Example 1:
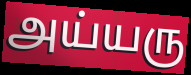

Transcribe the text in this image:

அய்யரு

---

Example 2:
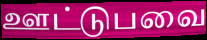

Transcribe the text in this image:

ஊட்டுபவை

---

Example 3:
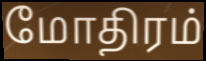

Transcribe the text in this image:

மோதிரம்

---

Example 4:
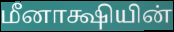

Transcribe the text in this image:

மீனாக்ஷியின்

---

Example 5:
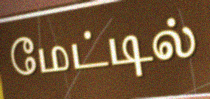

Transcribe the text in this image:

மேட்டில்